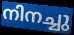
നിനച്ചു